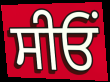
ਸੀਓਂ